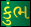
કુંભ